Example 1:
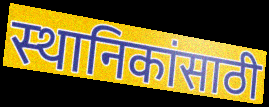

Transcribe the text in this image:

स्थानिकांसाठी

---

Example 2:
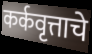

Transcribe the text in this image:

कर्कवृत्ताचे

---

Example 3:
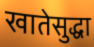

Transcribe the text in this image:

खातेसुद्धा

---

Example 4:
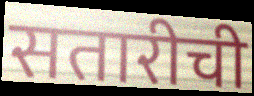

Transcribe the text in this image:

सतारीची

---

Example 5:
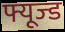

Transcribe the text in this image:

फ्यूज्ड